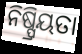
ନିଷ୍ପ୍ରିୟତା